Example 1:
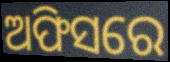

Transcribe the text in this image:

ଅଫିସରେ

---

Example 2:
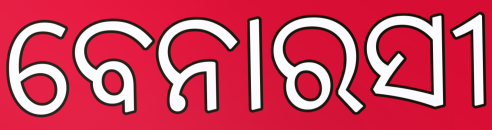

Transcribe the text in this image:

ବେନାରସୀ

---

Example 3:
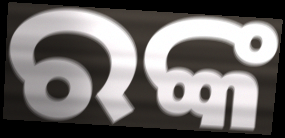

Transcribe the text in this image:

ରଙ୍କ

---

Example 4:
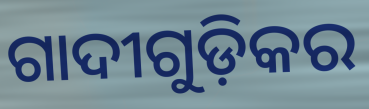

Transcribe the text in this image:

ଗାଦୀଗୁଡ଼ିକର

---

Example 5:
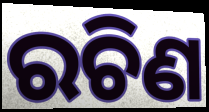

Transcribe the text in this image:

ରଚିଣ